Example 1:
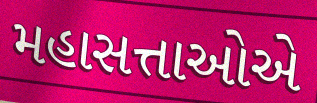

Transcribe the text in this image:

મહાસત્તાઓએ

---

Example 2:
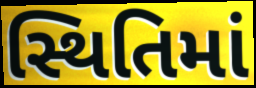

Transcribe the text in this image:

સ્થિતિમાં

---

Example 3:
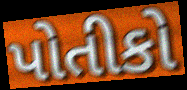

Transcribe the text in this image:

પોતીકો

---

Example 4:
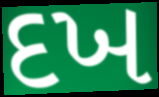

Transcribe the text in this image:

દખ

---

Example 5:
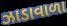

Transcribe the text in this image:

ઝાડાવાળા